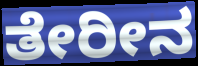
ತೇರೀನ